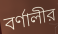
বর্ণালীর